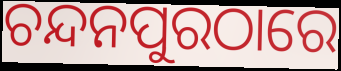
ଚନ୍ଦନପୁରଠାରେ